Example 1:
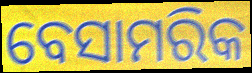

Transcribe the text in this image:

ବେସାମରିକ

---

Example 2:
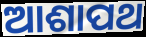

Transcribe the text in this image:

ଆଶାପଥ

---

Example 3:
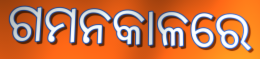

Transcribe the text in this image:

ଗମନକାଳରେ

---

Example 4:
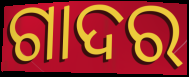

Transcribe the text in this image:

ଗାଦର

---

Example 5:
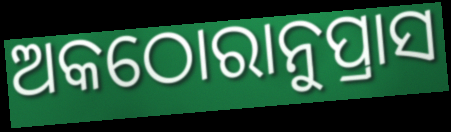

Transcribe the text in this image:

ଅକଠୋରାନୁପ୍ରାସ